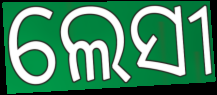
ଲେସୀ